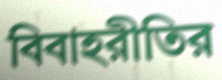
বিবাহরীতির